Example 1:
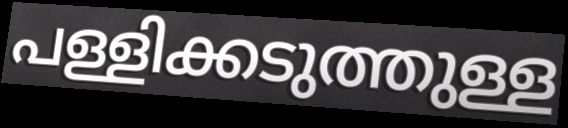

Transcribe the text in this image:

പള്ളിക്കടുത്തുള്ള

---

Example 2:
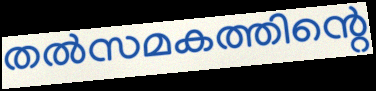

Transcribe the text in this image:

തൽസമകത്തിന്റെ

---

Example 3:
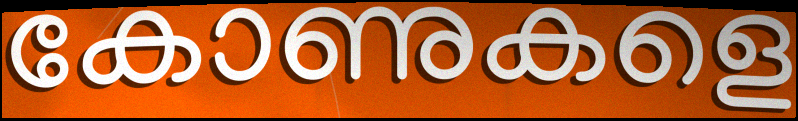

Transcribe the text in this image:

കോണുകളെ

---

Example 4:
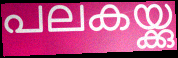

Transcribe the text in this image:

പലകയ്ക്കു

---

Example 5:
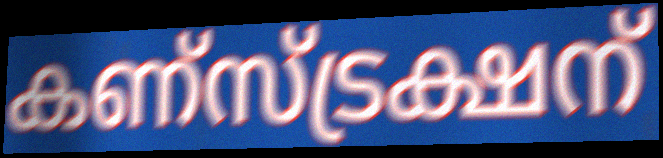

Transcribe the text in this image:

കണ്സ്ട്രക്ഷന്